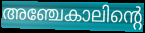
അഞ്ചേകാലിന്റെ